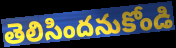
తెలిసిందనుకోండి